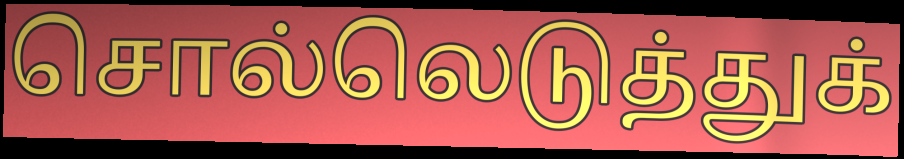
சொல்லெடுத்துக்